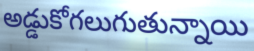
అడ్డుకోగలుగుతున్నాయి